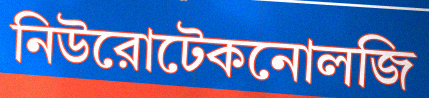
নিউরোটেকনোলজি